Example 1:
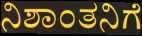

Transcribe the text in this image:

ನಿಶಾಂತನಿಗೆ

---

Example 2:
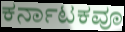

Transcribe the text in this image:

ಕರ್ನಾಟಕವೂ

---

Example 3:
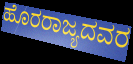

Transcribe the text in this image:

ಹೊರರಾಜ್ಯದವರ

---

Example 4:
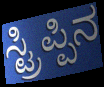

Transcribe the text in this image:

ಸ್ಟ್ರಿಪ್ಪಿನ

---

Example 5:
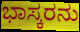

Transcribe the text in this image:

ಭಾಸ್ಕರನು